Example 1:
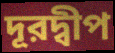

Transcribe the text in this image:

দূরদ্বীপ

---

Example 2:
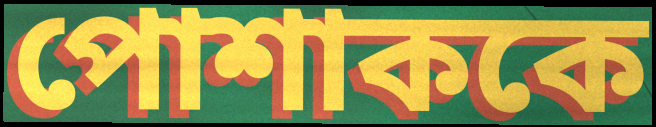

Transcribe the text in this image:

পোশাককে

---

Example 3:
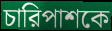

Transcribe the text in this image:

চারিপাশকে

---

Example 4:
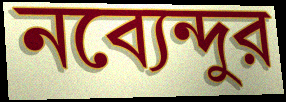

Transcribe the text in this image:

নব্যেন্দুর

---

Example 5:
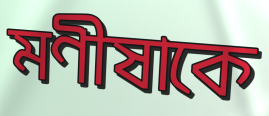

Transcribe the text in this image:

মণীষাকে